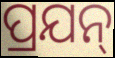
ପ୍ରଯନ୍